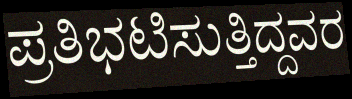
ಪ್ರತಿಭಟಿಸುತ್ತಿದ್ದವರ